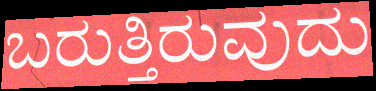
ಬರುತ್ತಿರುವುದು